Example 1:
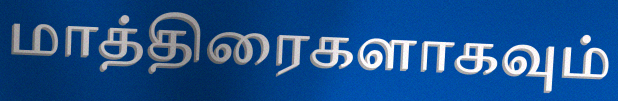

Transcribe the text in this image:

மாத்திரைகளாகவும்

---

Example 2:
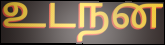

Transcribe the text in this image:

உடநன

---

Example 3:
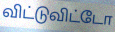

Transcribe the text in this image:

விட்டுவிட்டோ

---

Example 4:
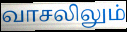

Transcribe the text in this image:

வாசலிலும்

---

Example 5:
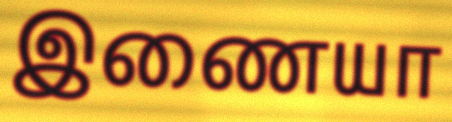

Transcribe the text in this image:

இணையா